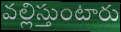
వల్లిస్తుంటారు